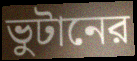
ভুটানের